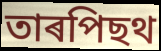
তাৰপিছথ